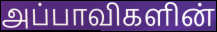
அப்பாவிகளின்